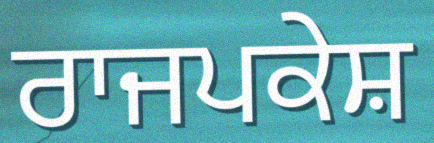
ਰਾਜਪਕੇਸ਼